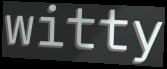
witty